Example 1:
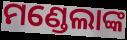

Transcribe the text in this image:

ମଣ୍ଡେଲାଙ୍କ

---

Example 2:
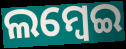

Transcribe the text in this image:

ଲମ୍ଵେଇ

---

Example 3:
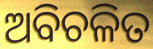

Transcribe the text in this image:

ଅବିଚଳିତ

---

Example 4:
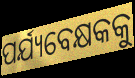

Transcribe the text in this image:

ପର୍ଯ୍ୟବେକ୍ଷକକୁ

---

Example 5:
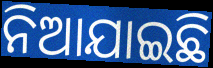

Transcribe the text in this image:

ନିଆଯାଇଛି